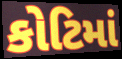
કોટિમાં